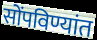
सोंपविण्यांत